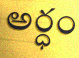
అర్ధం